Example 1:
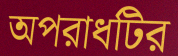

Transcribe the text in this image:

অপরাধটির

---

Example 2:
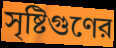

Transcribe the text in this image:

সৃষ্টিগুণের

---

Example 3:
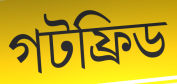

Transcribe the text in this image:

গটফ্রিড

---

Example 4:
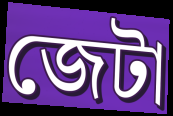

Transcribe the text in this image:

জেটা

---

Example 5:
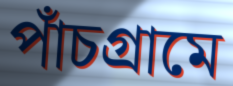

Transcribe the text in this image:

পাঁচগ্রামে